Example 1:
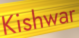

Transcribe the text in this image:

Kishwar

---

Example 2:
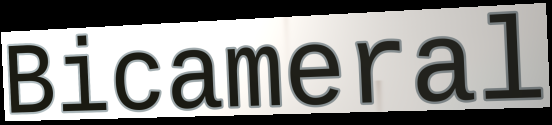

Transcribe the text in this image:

Bicameral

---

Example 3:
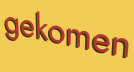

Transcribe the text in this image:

gekomen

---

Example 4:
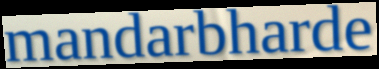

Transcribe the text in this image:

mandarbharde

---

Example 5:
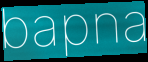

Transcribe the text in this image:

bapna